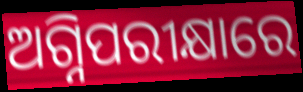
ଅଗ୍ନିପରୀକ୍ଷାରେ